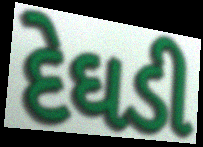
દેઘડી